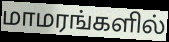
மாமரங்களில்